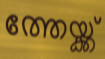
ത്തേയ്ക്ക്